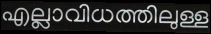
എല്ലാവിധത്തിലുള്ള